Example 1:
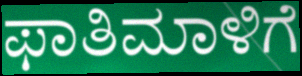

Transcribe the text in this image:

ಫಾತಿಮಾಳಿಗೆ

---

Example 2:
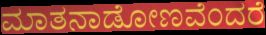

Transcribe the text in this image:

ಮಾತನಾಡೋಣವೆಂದರೆ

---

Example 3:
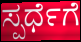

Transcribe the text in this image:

ಸ್ಪರ್ಧೆಗೆ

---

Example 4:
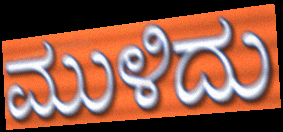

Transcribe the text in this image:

ಮುಳಿದು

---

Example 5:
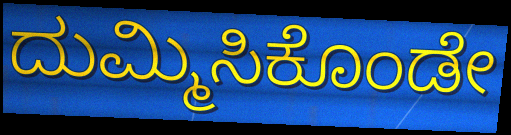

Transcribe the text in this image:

ದುಮ್ಮಿಸಿಕೊಂಡೇ